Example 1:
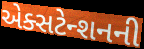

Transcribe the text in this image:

એક્સટેન્શનની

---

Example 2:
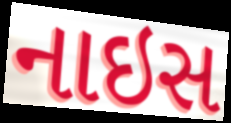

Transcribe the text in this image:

નાઇસ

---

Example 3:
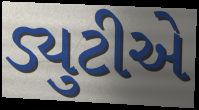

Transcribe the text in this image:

ડ્યુટીએ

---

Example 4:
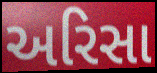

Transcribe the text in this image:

અરિસા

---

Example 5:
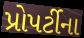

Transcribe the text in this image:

પ્રોપર્ટીના